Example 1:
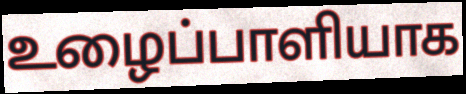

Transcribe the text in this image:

உழைப்பாளியாக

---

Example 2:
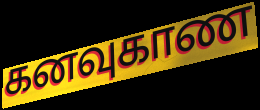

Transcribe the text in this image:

கனவுகாண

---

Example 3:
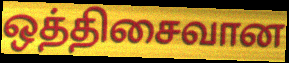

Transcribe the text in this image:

ஒத்திசைவான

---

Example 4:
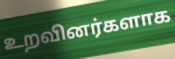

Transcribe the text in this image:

உறவினர்களாக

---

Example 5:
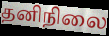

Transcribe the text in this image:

தனிநிலை